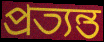
প্রত্যন্ত